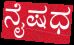
ನೈಷಧ